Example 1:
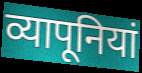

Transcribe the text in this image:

व्यापूनियां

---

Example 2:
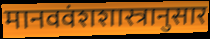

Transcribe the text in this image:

मानववंशशास्त्रानुसार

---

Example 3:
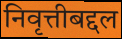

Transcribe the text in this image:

निवृत्तीबद्दल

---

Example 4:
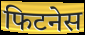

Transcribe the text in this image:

फिटनेस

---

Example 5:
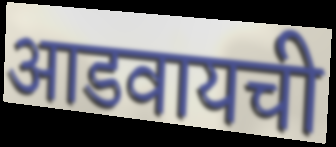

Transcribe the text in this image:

आडवायची